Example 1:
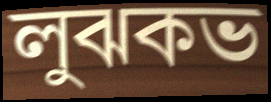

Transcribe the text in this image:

লুঝকভ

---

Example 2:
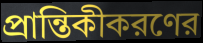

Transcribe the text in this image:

প্রান্তিকীকরণের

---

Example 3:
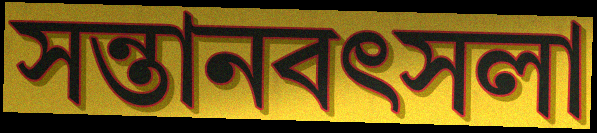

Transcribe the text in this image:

সন্তানবৎসলা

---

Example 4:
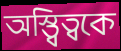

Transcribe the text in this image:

অস্ত্বিত্বকে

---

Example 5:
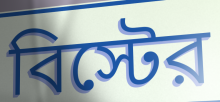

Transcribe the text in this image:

বিস্টের